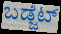
ಬಡ್ಜೆಟ್